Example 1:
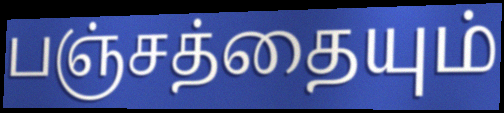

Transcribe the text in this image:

பஞ்சத்தையும்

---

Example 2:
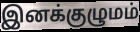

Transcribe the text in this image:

இனக்குழுமம்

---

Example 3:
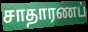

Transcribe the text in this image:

சாதாரணப்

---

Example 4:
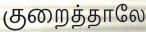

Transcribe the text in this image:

குறைத்தாலே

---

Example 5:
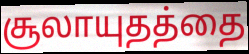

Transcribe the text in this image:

சூலாயுதத்தை